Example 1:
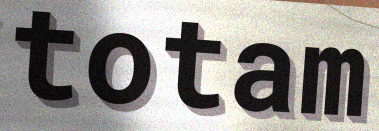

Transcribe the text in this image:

totam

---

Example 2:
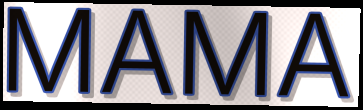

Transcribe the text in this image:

MAMA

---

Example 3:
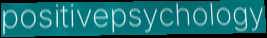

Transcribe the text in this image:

positivepsychology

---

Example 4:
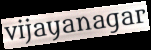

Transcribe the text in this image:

vijayanagar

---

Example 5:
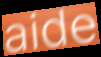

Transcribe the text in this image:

aide